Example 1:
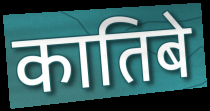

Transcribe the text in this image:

कातिबे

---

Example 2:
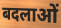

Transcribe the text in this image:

बदलाओं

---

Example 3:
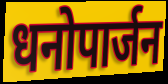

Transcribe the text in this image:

धनोपार्जन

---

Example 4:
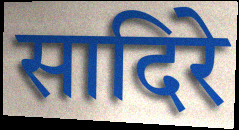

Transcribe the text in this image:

सादिरे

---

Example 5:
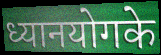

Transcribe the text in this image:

ध्यानयोगके